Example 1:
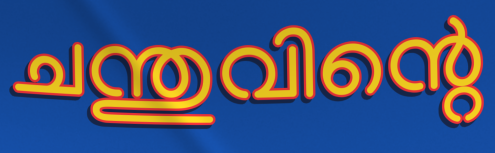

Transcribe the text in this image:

ചന്തുവിന്റെ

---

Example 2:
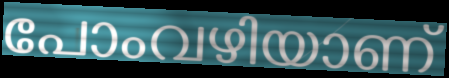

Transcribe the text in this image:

പോംവഴിയാണ്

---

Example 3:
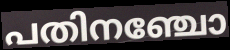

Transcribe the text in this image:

പതിനഞ്ചോ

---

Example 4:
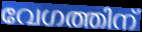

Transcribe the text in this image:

വേഗത്തിന്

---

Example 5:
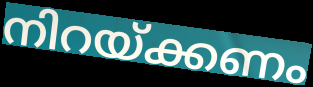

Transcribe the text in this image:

നിറയ്ക്കണം